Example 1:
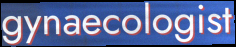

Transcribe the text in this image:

gynaecologist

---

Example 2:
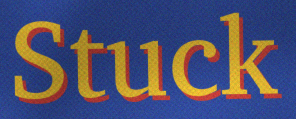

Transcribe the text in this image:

Stuck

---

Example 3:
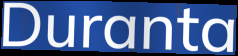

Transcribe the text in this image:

Duranta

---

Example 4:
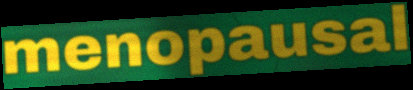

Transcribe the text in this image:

menopausal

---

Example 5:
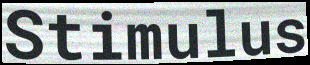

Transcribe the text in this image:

Stimulus